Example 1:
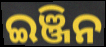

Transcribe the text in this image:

ଇଞ୍ଜିନ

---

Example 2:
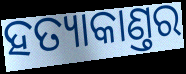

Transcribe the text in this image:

ହତ୍ୟାକାଣ୍ତର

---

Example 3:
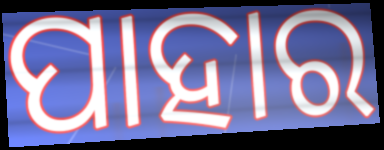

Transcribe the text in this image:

ପାହାର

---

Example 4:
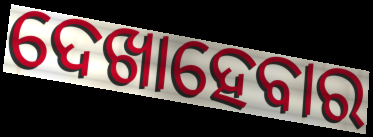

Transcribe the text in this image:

ଦେଖାହେବାର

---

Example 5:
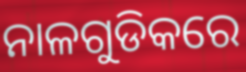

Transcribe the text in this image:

ନାଳଗୁଡିକରେ